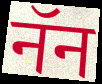
नॅन